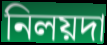
নিলয়দা